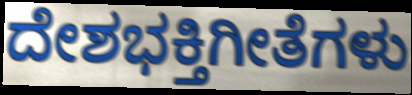
ದೇಶಭಕ್ತಿಗೀತೆಗಳು